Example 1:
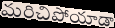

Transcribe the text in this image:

మరిచిపోయాడా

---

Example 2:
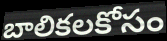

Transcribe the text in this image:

బాలికలకోసం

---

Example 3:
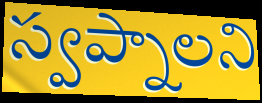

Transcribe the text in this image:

స్వప్నాలని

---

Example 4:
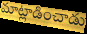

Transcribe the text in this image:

మాట్లాడించాడు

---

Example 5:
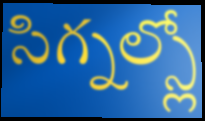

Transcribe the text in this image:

సిగ్నల్స్లో